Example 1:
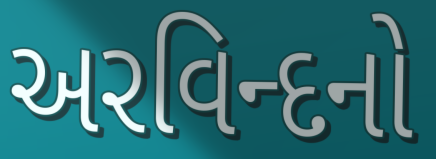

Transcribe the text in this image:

અરવિન્દનો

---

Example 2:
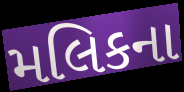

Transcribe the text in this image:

મલિકના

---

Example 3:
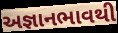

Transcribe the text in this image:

અજ્ઞાનભાવથી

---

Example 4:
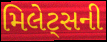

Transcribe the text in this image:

મિલેટ્સની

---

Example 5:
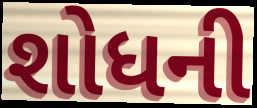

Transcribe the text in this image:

શોધની